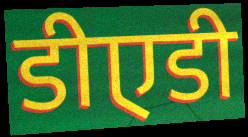
डीएडी